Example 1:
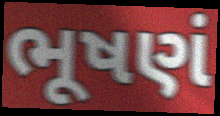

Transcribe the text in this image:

ભૂષણં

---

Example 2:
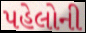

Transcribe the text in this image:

પહેલોની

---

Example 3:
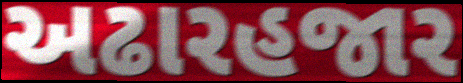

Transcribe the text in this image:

અઢારહજાર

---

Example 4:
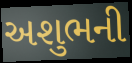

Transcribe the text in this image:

અશુભની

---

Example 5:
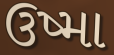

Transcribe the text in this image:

ઉષ્મા